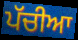
ਪੱਚੀਆ